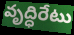
వృద్ధిరేటు